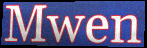
Mwen